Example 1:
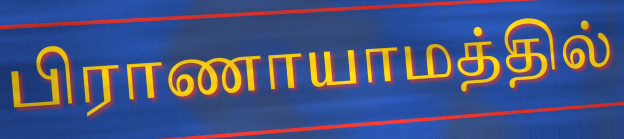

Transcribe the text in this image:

பிராணாயாமத்தில்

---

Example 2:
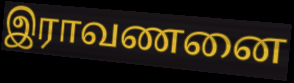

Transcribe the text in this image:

இராவணனை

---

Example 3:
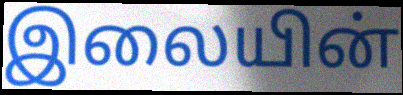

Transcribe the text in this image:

இலையின்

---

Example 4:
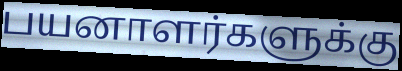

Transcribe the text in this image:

பயனாளர்களுக்கு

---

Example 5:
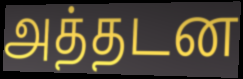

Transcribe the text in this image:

அத்தடன